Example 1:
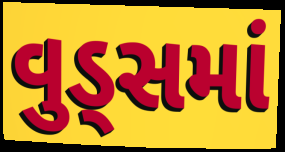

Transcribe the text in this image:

વુડ્સમાં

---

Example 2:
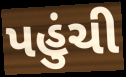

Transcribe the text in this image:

પહુંચી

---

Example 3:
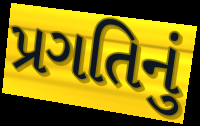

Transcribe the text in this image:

પ્રગતિનું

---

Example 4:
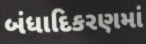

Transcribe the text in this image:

બંધાદિકરણમાં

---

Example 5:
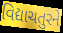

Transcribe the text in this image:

વિદ્યાચતુરને